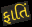
ફાતિં